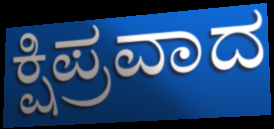
ಕ್ಷಿಪ್ರವಾದ